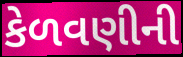
કેળવણીની